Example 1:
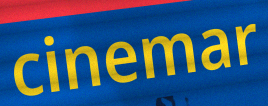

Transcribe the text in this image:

cinemar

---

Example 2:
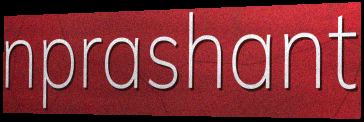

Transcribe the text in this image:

nprashant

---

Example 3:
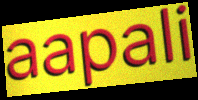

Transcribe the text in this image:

aapali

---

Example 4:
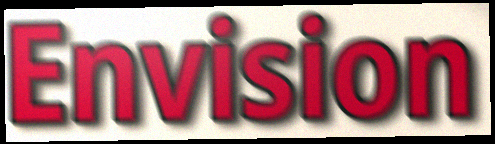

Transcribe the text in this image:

Envision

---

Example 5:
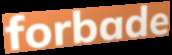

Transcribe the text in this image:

forbade